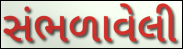
સંભળાવેલી